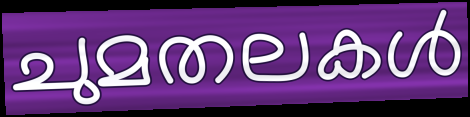
ചുമതലകൾ